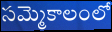
సమ్మెకాలంలో